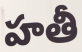
హతీ